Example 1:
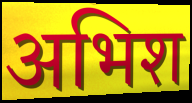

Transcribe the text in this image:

अभिश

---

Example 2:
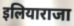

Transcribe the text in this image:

इलियाराजा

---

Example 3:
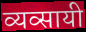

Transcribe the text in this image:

व्यव्सायी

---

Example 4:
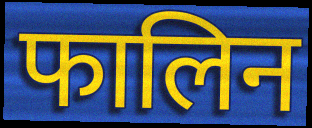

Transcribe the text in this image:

फालिन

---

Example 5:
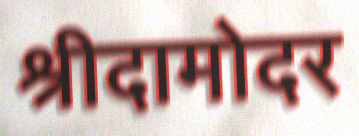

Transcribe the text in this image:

श्रीदामोदर